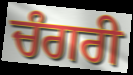
ਚੰਗਰੀ